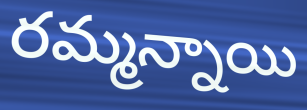
రమ్మన్నాయి